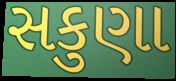
સકુણા